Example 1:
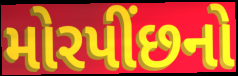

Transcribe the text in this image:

મોરપીંછનો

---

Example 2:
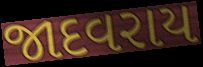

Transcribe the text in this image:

જાદવરાય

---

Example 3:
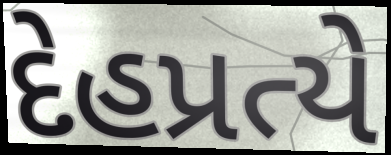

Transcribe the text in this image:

દેહપ્રત્યે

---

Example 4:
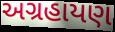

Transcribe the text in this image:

અગ્રહાયણ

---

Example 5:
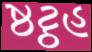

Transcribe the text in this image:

ષ્ઠટ્ઠહ